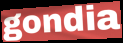
gondia